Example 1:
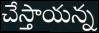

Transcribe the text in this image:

చేస్తాయన్న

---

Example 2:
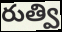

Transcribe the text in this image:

రుత్వి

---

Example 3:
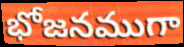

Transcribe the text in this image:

భోజనముగా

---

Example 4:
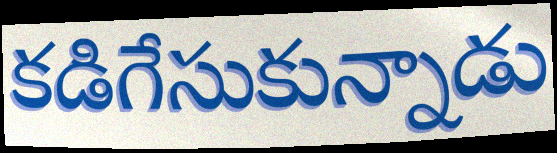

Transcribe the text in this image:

కడిగేసుకున్నాడు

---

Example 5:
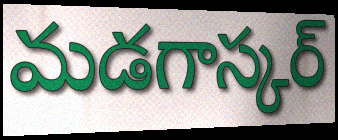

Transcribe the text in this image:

మడగాస్కర్